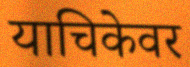
याचिकेवर